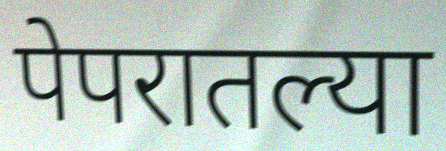
पेपरातल्या